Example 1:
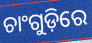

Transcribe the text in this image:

ଚାଂଗୁଡ଼ିରେ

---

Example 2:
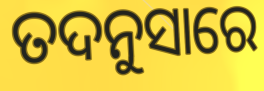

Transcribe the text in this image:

ତଦନୁସାରେ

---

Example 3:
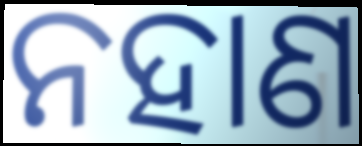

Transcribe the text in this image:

ନହାଣ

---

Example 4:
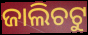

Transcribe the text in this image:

ଜାଲିଚଟୁ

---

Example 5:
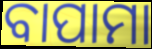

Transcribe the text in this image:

ବାପାମା